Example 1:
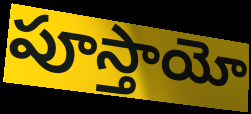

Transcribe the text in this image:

పూస్తాయో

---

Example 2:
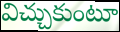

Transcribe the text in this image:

విచ్చుకుంటూ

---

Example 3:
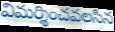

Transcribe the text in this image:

విమర్శించవలసిన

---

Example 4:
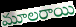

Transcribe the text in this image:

మూలరాయి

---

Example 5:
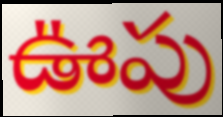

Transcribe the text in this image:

ఊపు